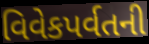
વિવેકપર્વતની